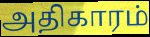
அதிகாரம்